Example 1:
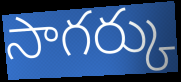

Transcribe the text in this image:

సాగర్కు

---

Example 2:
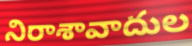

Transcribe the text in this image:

నిరాశావాదుల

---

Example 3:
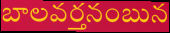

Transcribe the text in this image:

బాలవర్తనంబున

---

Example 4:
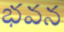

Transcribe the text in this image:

భవన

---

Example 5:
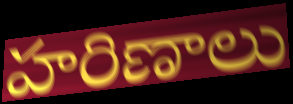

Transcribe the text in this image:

హరిణాలు